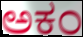
ಅಕಂ